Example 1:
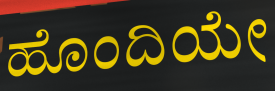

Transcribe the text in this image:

ಹೊಂದಿಯೇ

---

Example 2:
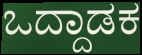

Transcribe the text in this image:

ಒದ್ದಾಡಕ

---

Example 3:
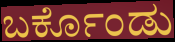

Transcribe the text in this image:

ಬರ್ಕೊಂಡು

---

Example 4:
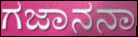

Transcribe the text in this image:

ಗಜಾನನಾ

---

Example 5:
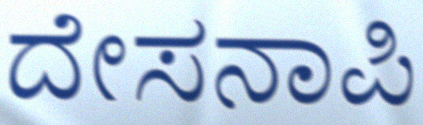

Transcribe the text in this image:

ದೇಸನಾಪಿ